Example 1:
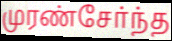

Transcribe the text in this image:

முரண்சேர்ந்த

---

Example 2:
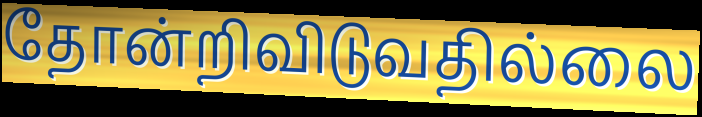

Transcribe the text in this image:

தோன்றிவிடுவதில்லை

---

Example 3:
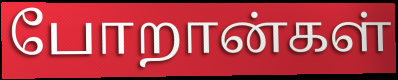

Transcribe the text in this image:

போறான்கள்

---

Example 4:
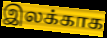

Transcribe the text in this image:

இலக்காக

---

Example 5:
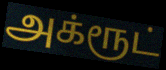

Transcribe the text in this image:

அக்ரூட்